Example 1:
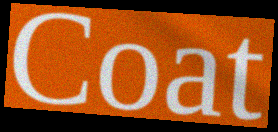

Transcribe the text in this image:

Coat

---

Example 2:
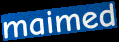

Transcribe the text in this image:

maimed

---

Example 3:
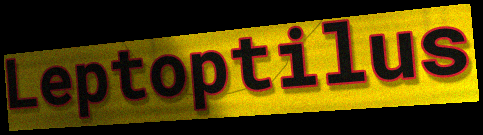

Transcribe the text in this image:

Leptoptilus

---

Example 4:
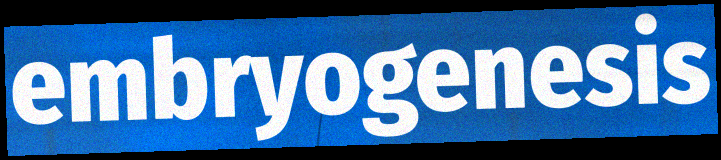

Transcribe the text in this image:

embryogenesis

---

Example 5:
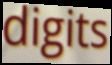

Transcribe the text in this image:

digits